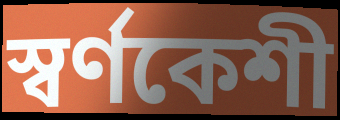
স্বর্ণকেশী